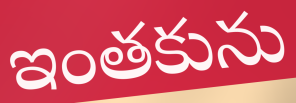
ఇంతకును